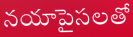
నయాపైసలతో